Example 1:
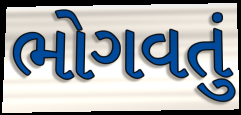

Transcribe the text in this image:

ભોગવતું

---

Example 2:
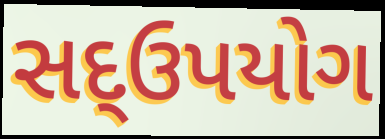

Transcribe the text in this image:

સદ્ઉપયોગ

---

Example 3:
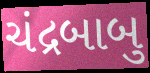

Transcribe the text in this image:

ચંદ્રબાબુ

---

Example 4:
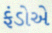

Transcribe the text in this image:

ફંડોએ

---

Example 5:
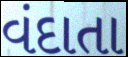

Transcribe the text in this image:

વંદાતા